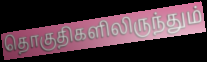
தொகுதிகளிலிருந்தும்